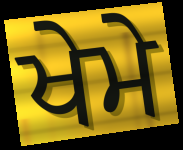
ਖੇਮੇ